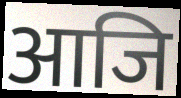
आजि